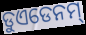
ଡୁଏଡେନମ୍